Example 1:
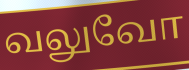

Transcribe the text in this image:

வலுவோ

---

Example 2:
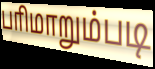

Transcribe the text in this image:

பரிமாறும்படி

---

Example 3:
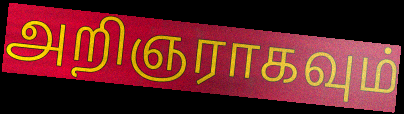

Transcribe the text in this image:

அறிஞராகவும்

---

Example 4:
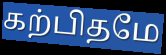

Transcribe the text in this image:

கற்பிதமே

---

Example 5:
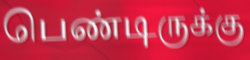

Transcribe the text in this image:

பெண்டிருக்கு